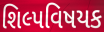
શિલ્પવિષયક